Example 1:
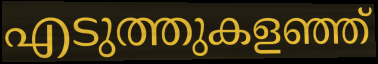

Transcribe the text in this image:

എടുത്തുകളഞ്ഞ്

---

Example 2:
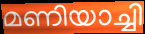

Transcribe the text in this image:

മണിയാച്ചി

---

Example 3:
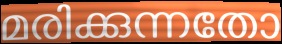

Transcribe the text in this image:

മരിക്കുന്നതോ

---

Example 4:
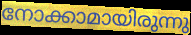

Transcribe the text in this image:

നോക്കാമായിരുന്നു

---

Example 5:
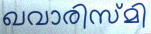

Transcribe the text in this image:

ഖവാരിസ്മി